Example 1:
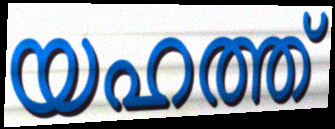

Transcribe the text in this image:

യഹത്ത്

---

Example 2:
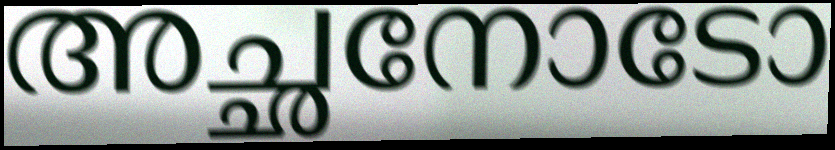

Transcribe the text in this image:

അച്ഛനോടോ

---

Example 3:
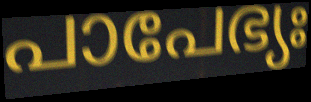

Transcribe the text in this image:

പാപേഭ്യഃ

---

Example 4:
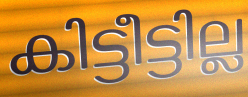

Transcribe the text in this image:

കിട്ടീട്ടില്ല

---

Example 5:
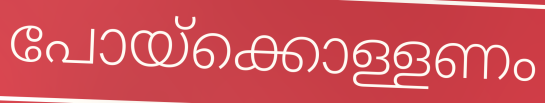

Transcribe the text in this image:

പോയ്ക്കൊള്ളണം